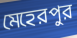
মেহেরপুর